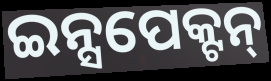
ଇନ୍ସପେକ୍ଟନ୍